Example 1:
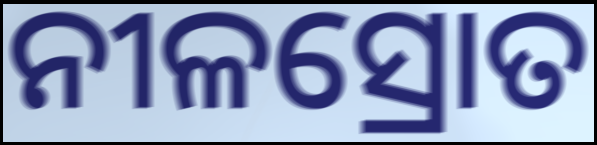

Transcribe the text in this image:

ନୀଳସ୍ରୋତ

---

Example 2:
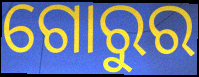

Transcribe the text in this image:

ଗୋରୁର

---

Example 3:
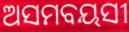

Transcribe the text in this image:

ଅସମବୟସୀ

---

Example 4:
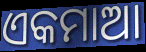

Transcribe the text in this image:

ଏକମାଆ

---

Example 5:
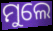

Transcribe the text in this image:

ମୁଲେ